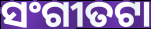
ସଂଗୀତଟା